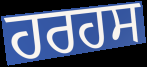
ਹਰਹਸ